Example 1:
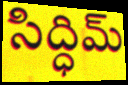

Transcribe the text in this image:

సిద్ధిమ్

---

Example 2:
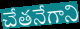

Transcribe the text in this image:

చేతనేగాని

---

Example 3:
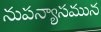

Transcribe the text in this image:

నుపన్యాసమున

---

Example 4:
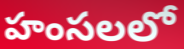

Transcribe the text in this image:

హంసలలో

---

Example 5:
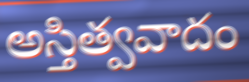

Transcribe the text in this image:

అస్తిత్వవాదం